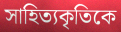
সাহিত্যকৃতিকে